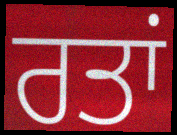
ਰਤਾਂ